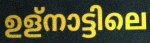
ഉള്നാട്ടിലെ